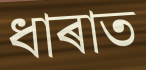
ধাৰাত